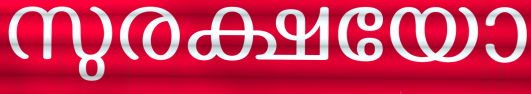
സുരക്ഷയോ